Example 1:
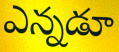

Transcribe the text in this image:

ఎన్నడూ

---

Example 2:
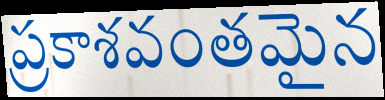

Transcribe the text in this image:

ప్రకాశవంతమైన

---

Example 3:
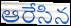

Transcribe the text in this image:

ఆరేసిన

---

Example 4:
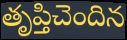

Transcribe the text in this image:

తృప్తిచెందిన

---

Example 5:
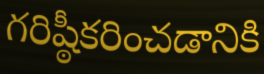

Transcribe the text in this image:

గరిష్ఠీకరించడానికి